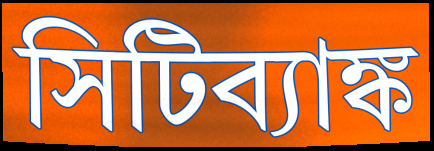
সিটিব্যাঙ্ক